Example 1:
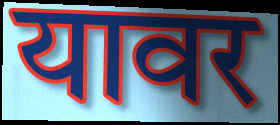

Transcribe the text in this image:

यावर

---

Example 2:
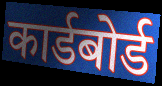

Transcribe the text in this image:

कार्डबोर्ड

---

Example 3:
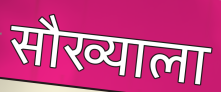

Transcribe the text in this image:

सौख्याला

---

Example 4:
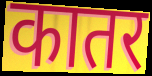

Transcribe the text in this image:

कातर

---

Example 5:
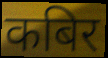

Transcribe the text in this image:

कबिर